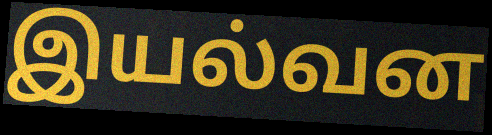
இயல்வன